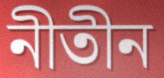
নীতীন